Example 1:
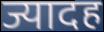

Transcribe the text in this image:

ज्यादह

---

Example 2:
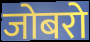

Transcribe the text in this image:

जोबरो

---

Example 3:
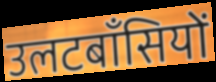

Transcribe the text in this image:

उलटबाँसियों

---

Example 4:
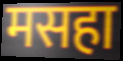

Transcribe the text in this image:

मसहा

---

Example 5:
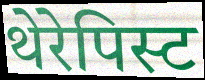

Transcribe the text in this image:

थेरेपिस्‍ट